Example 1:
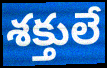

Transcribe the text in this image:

శక్తులే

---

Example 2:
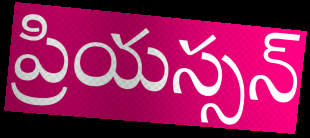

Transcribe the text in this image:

ప్రియస్సన్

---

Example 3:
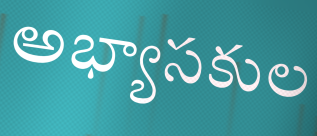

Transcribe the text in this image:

అభ్యాసకుల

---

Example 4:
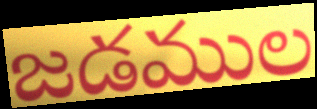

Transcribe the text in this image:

జడముల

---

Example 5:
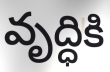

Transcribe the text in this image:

వృద్ధికి